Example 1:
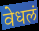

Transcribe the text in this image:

वेधलं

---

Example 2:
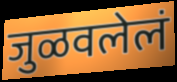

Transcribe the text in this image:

जुळवलेलं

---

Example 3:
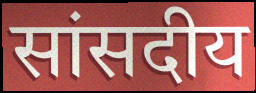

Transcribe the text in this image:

सांसदीय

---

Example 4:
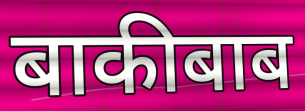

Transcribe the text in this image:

बाकीबाब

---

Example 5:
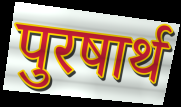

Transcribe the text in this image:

पुरषार्थ